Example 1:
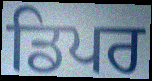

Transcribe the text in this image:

ਡਿਪਰ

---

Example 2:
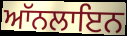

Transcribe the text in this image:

ਆੱਨਲਾਇਨ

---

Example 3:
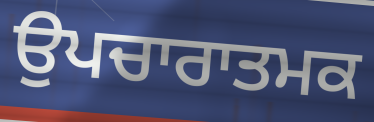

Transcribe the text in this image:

ਉਪਚਾਰਾਤਮਕ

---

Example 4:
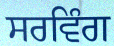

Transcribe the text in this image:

ਸਰਵਿੰਗ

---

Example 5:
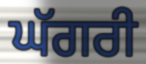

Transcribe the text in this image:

ਘੱਗਰੀ